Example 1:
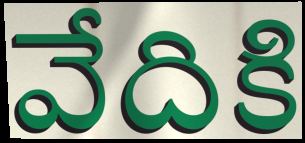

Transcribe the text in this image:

వేదికి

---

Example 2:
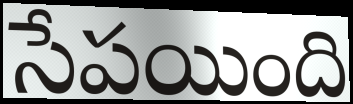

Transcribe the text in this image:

సేపయింది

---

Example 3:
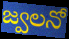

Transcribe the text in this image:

జ్వలనో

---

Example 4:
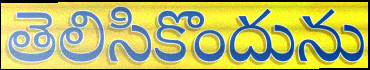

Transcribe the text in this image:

తెలిసికొందును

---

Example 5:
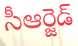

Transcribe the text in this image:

సీఆర్జెడ్